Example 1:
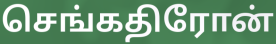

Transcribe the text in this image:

செங்கதிரோன்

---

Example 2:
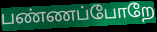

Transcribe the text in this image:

பண்ணப்போறே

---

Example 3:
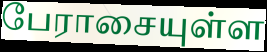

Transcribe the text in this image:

பேராசையுள்ள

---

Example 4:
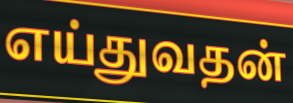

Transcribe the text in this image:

எய்துவதன்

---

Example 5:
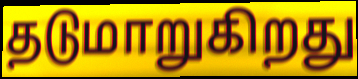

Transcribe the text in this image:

தடுமாறுகிறது